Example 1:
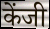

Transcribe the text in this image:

केंजी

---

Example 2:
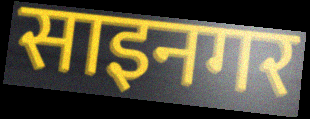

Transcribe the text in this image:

साइनगर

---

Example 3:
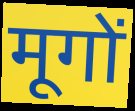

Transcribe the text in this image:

मूगों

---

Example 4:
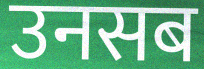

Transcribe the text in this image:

उनसब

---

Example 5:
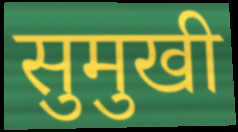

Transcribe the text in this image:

सुमुखी